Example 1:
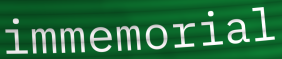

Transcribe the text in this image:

immemorial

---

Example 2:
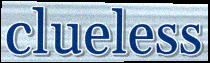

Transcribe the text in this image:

clueless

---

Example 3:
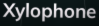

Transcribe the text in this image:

Xylophone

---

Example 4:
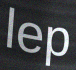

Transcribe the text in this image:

lep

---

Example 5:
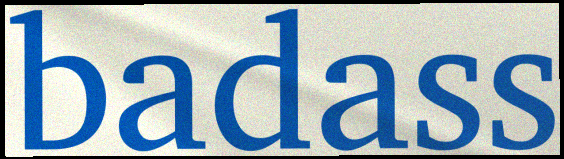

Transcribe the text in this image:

badass